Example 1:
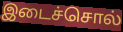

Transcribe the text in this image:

இடைச்சொல்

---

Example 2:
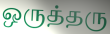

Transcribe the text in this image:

ஒருத்தரு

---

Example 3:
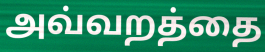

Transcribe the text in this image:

அவ்வறத்தை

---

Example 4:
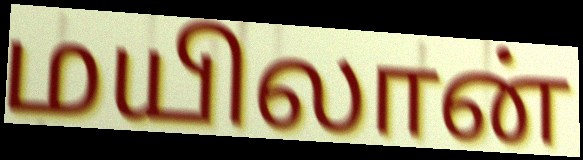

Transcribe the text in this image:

மயிலான்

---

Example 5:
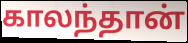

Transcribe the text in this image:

காலந்தான்